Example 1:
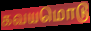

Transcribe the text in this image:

கவயமொடு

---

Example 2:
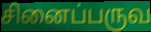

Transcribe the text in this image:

சினைப்பருவ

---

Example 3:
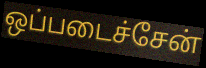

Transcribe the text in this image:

ஒப்படைச்சேன்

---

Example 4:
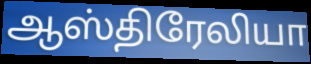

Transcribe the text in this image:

ஆஸ்திரேலியா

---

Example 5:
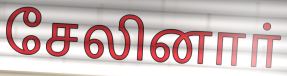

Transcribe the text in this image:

சேலினார்